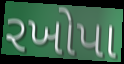
રખોપા